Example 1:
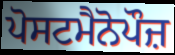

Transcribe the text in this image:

ਪੋਸਟਮੈਨੋਪੌਜ਼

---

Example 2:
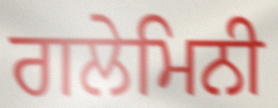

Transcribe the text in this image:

ਗਲੇਮਿਨੀ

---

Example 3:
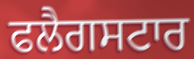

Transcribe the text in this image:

ਫਲੈਗਸਟਾਰ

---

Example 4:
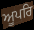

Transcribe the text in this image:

ਅੂਪਰਿ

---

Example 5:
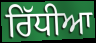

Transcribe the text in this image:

ਰਿੱਧੀਆ